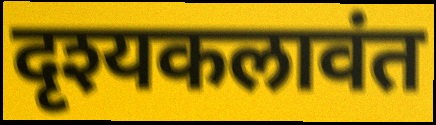
दृश्यकलावंत